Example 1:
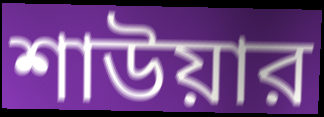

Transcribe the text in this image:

শাউয়ার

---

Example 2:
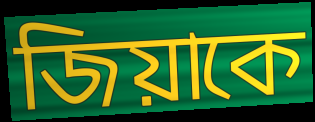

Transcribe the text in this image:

জিয়াকে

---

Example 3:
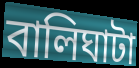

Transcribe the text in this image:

বালিঘাটা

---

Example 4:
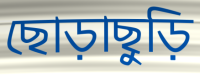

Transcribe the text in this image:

ছোড়াছুড়ি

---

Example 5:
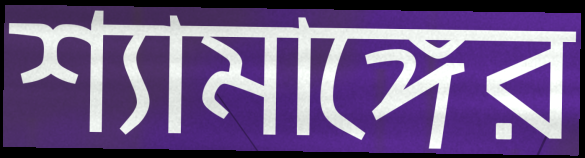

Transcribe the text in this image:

শ্যামাঙ্গের